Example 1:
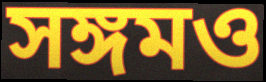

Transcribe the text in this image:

সঙ্গমও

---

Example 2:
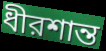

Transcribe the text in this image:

ধীরশান্ত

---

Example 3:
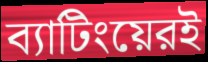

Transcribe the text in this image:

ব্যাটিংয়েরই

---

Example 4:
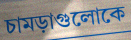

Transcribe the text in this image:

চামড়াগুলোকে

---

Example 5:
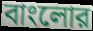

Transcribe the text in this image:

বাংলোর